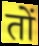
तों